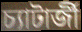
চ্যাটার্জী